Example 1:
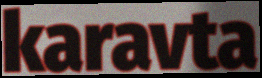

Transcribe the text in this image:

karavta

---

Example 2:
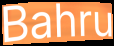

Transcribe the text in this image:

Bahru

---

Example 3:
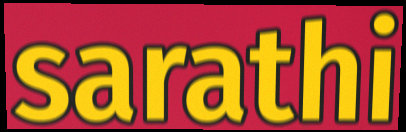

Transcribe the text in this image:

sarathi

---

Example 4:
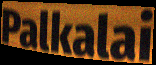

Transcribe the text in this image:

Palkalai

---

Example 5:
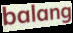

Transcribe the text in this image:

balang